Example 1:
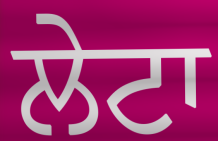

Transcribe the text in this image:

ਲੇਟਾ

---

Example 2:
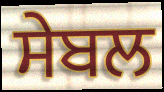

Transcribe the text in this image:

ਸੇਬਲ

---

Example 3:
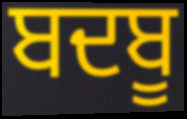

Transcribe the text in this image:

ਬਦਬੂ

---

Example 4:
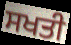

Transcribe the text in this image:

ਸਖਤੀ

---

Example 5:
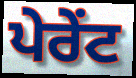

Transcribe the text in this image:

ਪੇਰੇਂਟ